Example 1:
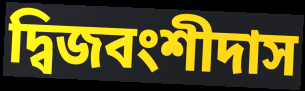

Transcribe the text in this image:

দ্বিজবংশীদাস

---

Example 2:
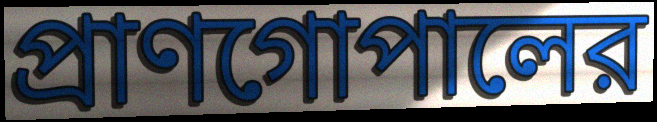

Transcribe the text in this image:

প্রাণগোপালের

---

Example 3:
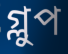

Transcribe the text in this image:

গ্লুপ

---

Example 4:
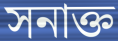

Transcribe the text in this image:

সনাক্ত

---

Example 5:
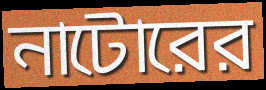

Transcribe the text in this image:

নাটোরের